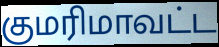
குமரிமாவட்ட